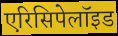
एरिसिपेलॉइड